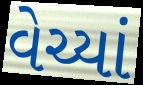
વેચ્યાં